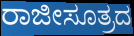
ರಾಜೀಸೂತ್ರದ